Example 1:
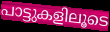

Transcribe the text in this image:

പാട്ടുകളിലൂടെ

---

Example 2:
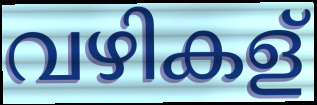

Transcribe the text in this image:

വഴികള്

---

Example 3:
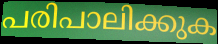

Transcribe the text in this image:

പരിപാലിക്കുക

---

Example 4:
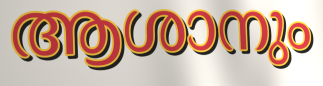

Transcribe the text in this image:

ആശാനും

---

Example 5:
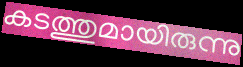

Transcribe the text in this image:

കടത്തുമായിരുന്നു